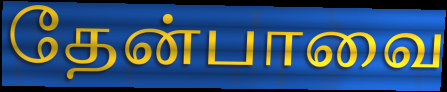
தேன்பாவை